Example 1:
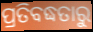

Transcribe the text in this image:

ପ୍ରତିବଦ୍ଧତାରୁ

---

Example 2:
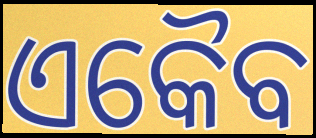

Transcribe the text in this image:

ଏକୈବ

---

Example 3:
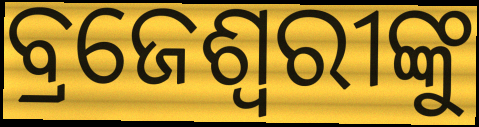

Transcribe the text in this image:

ବ୍ରଜେଶ୍ୱରୀଙ୍କୁ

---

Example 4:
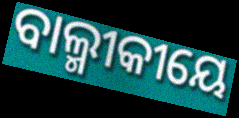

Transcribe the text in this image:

ବାଲ୍ମୀକୀୟେ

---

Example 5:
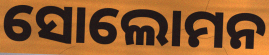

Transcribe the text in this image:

ସୋଲୋମନ